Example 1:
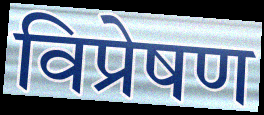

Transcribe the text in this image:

विप्रेषण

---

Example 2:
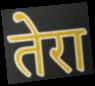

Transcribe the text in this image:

तेरा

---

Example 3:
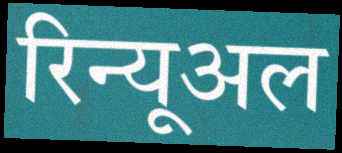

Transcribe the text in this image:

रिन्यूअल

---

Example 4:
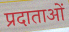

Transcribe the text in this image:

प्रदाताओं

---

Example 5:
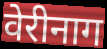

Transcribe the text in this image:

वेरीनाग